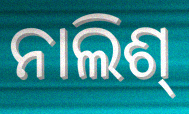
ନାଲିଶ୍